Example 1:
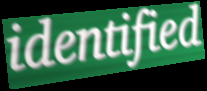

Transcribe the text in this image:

identified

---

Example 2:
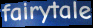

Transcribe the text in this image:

fairytale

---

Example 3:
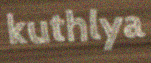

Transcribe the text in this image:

kuthlya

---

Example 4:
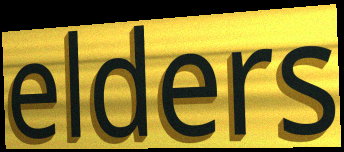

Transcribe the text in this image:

elders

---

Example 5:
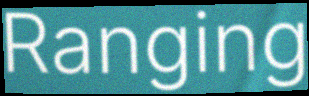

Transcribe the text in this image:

Ranging